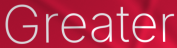
Greater